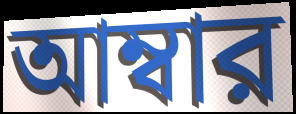
আম্বার